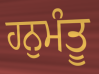
ਹਨੁਮੰਤੂ